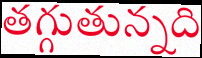
తగ్గుతున్నది